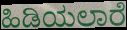
ಹಿಡಿಯಲಾರೆ